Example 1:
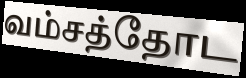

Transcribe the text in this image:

வம்சத்தோட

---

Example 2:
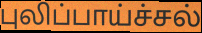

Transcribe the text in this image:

புலிப்பாய்ச்சல்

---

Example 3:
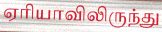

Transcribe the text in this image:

ஏரியாவிலிருந்து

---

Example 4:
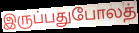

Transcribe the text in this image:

இருப்பதுபோலத்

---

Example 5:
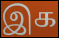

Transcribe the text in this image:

இக